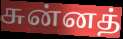
சுன்னத்